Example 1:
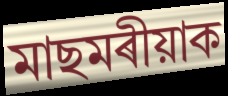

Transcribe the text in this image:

মাছমৰীয়াক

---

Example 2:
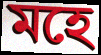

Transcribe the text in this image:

মহে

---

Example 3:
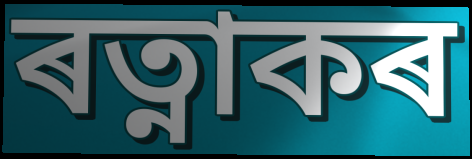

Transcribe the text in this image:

ৰত্নাকৰ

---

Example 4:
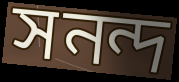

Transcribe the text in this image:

সনন্দ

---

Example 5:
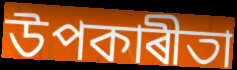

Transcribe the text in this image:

উপকাৰীতা